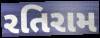
રતિરામ